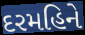
દરમહિને